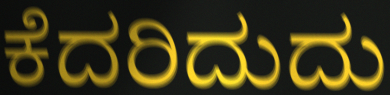
ಕೆದರಿದುದು